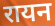
रायन